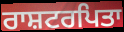
ਰਾਸ਼ਟਰਪਿਤਾ